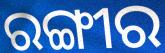
ରଙ୍ଗୀର